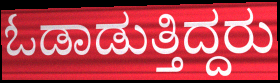
ಓಡಾಡುತ್ತಿದ್ದರು